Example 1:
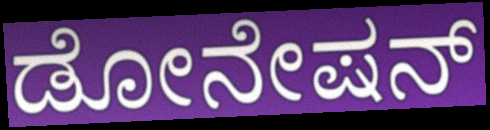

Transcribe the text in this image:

ಡೋನೇಷನ್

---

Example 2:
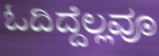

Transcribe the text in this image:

ಓದಿದ್ದೆಲ್ಲವೂ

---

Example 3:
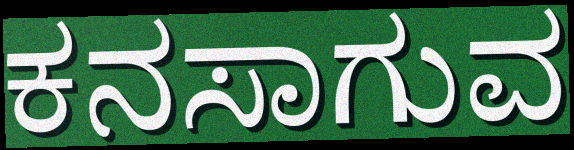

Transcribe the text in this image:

ಕನಸಾಗುವ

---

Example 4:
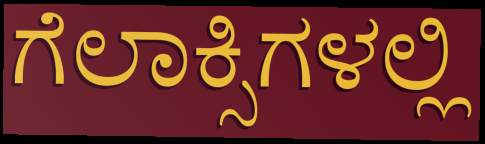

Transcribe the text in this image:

ಗೆಲಾಕ್ಸಿಗಳಲ್ಲಿ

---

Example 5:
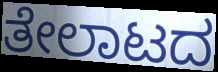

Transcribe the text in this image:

ತೇಲಾಟದ